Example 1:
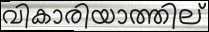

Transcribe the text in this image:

വികാരിയാത്തില്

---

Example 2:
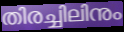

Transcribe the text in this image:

തിരച്ചിലിനും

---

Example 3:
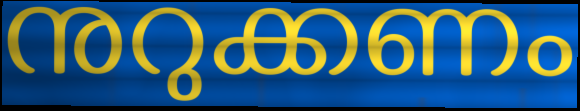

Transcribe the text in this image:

നുറുക്കണം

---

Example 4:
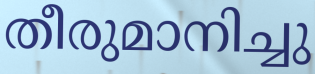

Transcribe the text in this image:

തീരുമാനിച്ചു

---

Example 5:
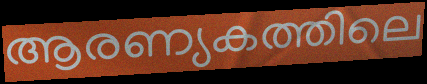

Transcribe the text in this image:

ആരണ്യകത്തിലെ